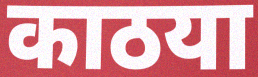
काठया